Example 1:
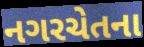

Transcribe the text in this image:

નગરચેતના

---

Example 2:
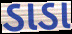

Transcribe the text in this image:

ડાડા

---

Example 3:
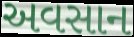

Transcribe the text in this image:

અવસાન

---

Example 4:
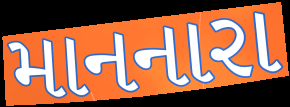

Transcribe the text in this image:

માનનારા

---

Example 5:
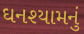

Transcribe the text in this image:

ઘનશ્યામનું